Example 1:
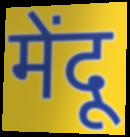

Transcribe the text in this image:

मेंदू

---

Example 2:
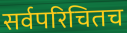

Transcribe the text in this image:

सर्वपरिचितच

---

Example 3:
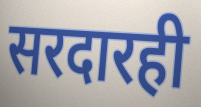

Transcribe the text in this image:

सरदारही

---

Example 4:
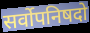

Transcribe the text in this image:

सर्वोपनिषदो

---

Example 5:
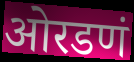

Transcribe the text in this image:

ओरडणं